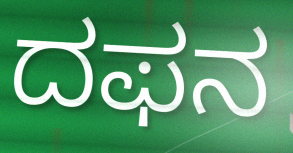
ದಫನ